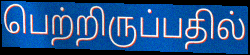
பெற்றிருப்பதில்